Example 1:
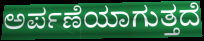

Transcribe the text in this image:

ಅರ್ಪಣೆಯಾಗುತ್ತದೆ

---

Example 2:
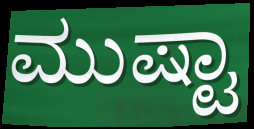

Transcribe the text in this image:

ಮುಷ್ಟಾ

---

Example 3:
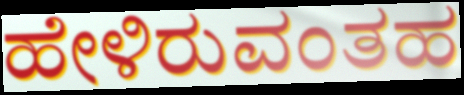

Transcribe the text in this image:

ಹೇಳಿರುವಂತಹ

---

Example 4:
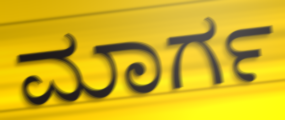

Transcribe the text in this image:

ಮಾರ್ಗ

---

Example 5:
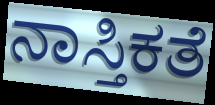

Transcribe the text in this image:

ನಾಸ್ತಿಕತೆ